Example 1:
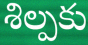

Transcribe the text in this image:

శిల్పకు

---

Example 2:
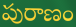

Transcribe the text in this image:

పురాణం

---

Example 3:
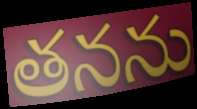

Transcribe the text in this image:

తనను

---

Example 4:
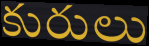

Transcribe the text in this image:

కురులు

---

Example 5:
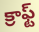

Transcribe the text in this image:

క్రాఫ్ట్